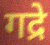
गद्रे